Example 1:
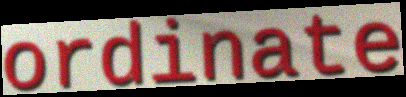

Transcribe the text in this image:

ordinate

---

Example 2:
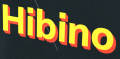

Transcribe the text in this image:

Hibino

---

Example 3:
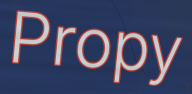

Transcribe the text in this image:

Propy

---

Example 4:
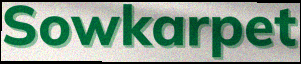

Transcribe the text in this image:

Sowkarpet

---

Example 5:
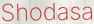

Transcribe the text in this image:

Shodasa